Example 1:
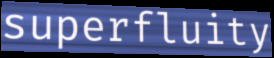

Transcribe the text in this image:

superfluity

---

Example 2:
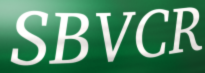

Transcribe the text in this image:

SBVCR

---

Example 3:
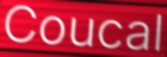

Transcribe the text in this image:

Coucal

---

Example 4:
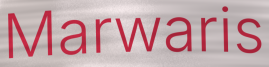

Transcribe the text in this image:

Marwaris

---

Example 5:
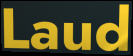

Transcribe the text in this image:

Laud